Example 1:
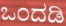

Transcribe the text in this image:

ಒಂದಡಿ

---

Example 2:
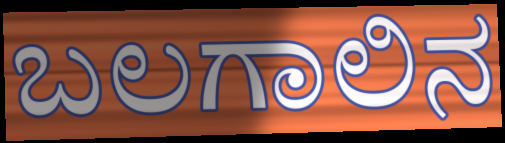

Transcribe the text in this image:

ಬಲಗಾಲಿನ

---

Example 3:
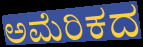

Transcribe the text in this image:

ಅಮೆರಿಕದ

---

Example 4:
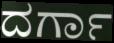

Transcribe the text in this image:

ದರ್ಗಾ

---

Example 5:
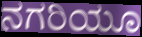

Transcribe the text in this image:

ನಗರಿಯೂ